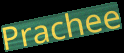
Prachee